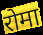
रोमा